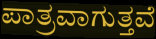
ಪಾತ್ರವಾಗುತ್ತವೆ